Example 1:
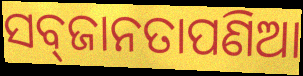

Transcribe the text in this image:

ସବ୍‌ଜାନତାପଣିଆ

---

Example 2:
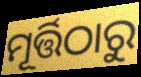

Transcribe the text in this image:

ମୂର୍ତ୍ତିଠାରୁ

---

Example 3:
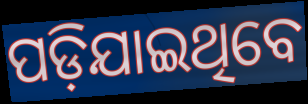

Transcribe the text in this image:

ପଡ଼ିଯାଇଥିବେ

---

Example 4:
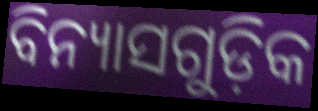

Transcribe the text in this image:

ବିନ୍ୟାସଗୁଡ଼ିକ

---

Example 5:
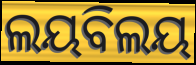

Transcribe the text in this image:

ଲୟବିଲୟ